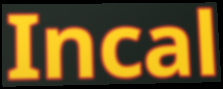
Incal